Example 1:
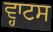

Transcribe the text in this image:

ਵ੍ਹਾਟਸ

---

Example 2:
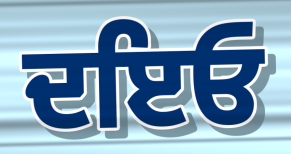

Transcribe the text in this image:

ਦਇਓ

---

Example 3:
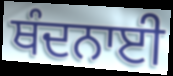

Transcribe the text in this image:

ਥੰਦਨਾਈ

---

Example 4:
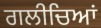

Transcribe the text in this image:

ਗਲੀਚਿਆਂ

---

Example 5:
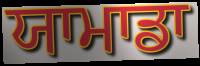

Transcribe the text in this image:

ਯਾਮਾਡਾ